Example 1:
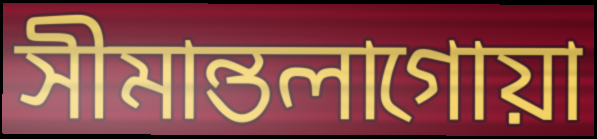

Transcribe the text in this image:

সীমান্তলাগোয়া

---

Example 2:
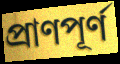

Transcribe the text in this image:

প্রাণপূর্ণ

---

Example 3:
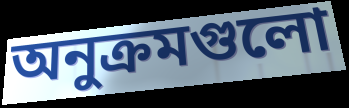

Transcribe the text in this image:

অনুক্রমগুলো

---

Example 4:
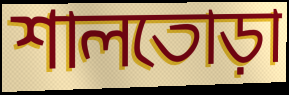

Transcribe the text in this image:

শালতোড়া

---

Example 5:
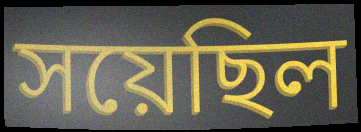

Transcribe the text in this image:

সয়েছিল